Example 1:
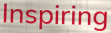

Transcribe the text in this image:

Inspiring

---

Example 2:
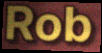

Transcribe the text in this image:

Rob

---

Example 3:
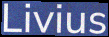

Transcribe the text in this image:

Livius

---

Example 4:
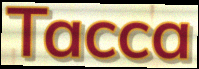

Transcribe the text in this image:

Tacca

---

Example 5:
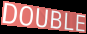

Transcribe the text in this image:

DOUBLE